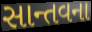
સાન્તવના